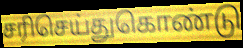
சரிசெய்துகொண்டு